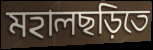
মহালছড়িতে